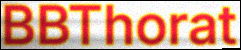
BBThorat